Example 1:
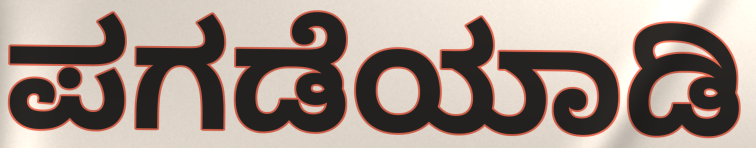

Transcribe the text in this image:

ಪಗಡೆಯಾಡಿ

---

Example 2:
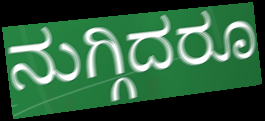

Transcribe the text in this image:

ನುಗ್ಗಿದರೂ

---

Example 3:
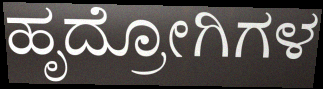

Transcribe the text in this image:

ಹೃದ್ರೋಗಿಗಳ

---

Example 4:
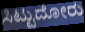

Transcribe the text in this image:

ಸಿಟ್ಟುದೋರು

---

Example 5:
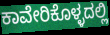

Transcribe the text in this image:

ಕಾವೇರಿಕೊಳ್ಳದಲ್ಲಿ